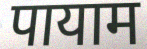
पायाम